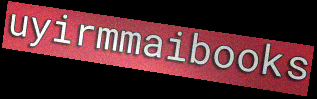
uyirmmaibooks